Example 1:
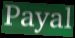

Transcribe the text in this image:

Payal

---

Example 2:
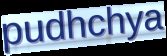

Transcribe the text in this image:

pudhchya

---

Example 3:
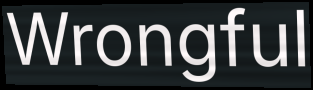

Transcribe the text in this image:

Wrongful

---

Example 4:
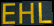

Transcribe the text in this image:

EHL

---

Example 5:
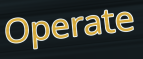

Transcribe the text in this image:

Operate